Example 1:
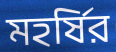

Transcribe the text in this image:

মহর্ষির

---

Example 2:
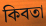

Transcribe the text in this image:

কিবতা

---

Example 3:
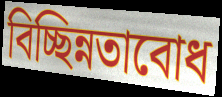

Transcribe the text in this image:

বিচ্ছিন্নতাবোধ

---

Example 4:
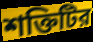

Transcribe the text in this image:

শক্তিটির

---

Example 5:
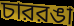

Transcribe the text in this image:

চাররঙা